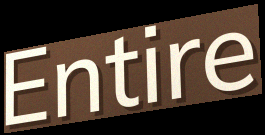
Entire